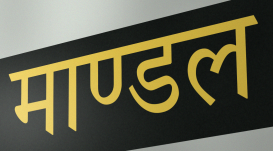
माण्डल